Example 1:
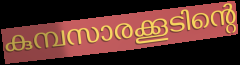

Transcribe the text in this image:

കുമ്പസാരക്കൂടിന്റെ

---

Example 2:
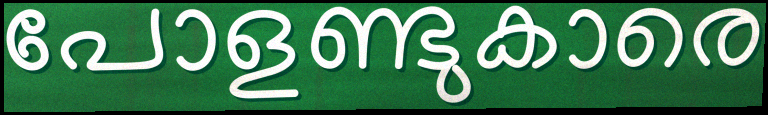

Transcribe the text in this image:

പോളണ്ടുകാരെ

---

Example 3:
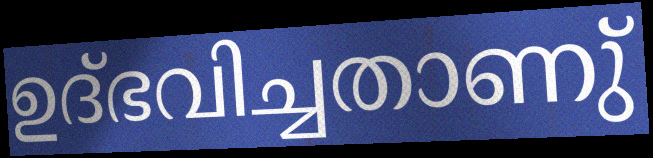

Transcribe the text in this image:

ഉദ്ഭവിച്ചതാണു്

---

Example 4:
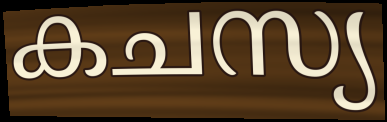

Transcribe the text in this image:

കചസ്യ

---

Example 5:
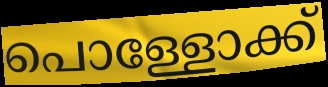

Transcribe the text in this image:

പൊള്ളോക്ക്